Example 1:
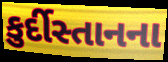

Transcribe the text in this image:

કુર્દીસ્તાનના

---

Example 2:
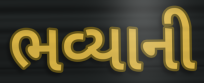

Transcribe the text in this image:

ભવ્યાની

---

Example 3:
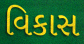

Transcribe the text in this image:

વિકાસ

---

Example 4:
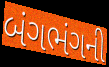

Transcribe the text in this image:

બંગભંગની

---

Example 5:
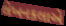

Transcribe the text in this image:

લેખનકલાએ